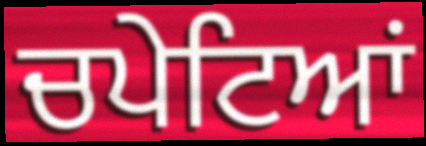
ਚਪੇਟਿਆਂ